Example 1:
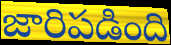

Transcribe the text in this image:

జారిపడింది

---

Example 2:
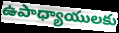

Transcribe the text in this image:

ఉపాధ్యాయులకు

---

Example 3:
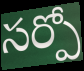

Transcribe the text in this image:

సర్పో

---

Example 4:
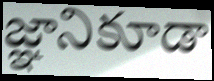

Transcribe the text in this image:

జ్ఞానికూడా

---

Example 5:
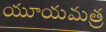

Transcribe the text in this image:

యూయమత్ర